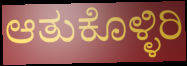
ಆತುಕೊಳ್ಳಿರಿ